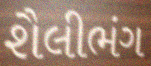
શૈલીભંગ